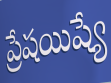
ప్రేషయిష్యే